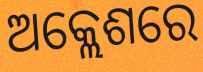
ଅକ୍ଲେଶରେ